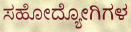
ಸಹೋದ್ಯೋಗಿಗಳ